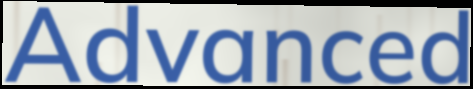
Advanced